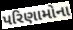
પરિણામોના